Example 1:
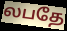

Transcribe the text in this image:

லபதே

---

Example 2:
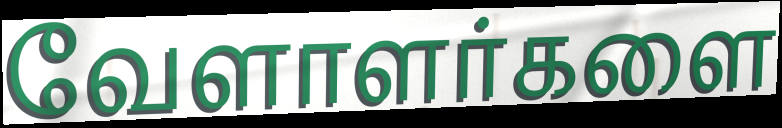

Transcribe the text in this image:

வேளாளர்களை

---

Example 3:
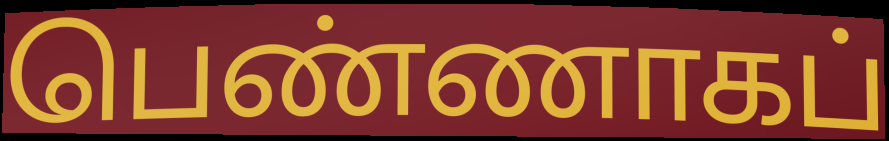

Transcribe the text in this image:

பெண்ணாகப்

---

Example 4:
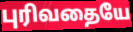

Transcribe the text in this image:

புரிவதையே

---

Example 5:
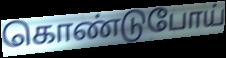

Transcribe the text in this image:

கொண்டுபோய்